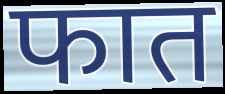
फात